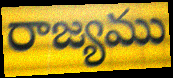
రాజ్యము